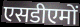
एसडीएमों